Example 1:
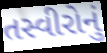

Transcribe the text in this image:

તસ્વીરોનું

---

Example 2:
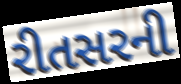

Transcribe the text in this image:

રીતસરની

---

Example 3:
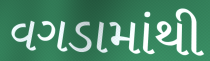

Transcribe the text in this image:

વગડામાંથી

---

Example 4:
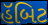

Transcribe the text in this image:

હૅબિટ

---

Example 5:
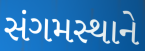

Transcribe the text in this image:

સંગમસ્થાને